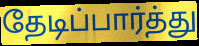
தேடிப்பார்த்து